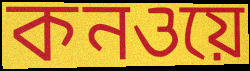
কনওয়ে